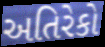
અતિરેકો